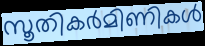
സൂതികർമിണികൾ